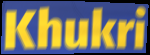
Khukri